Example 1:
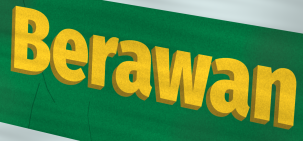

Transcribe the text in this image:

Berawan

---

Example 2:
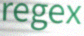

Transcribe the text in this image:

regex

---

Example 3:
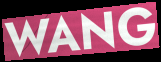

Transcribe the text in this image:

WANG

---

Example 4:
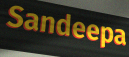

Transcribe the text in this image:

Sandeepa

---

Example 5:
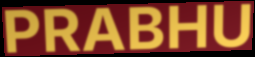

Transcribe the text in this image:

PRABHU